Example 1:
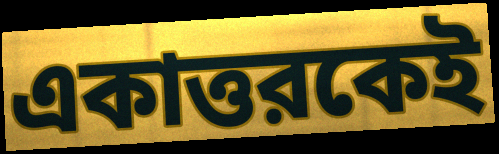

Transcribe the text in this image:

একাত্তরকেই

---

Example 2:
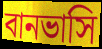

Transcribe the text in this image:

বানভাসি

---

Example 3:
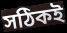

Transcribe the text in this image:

সঠিকই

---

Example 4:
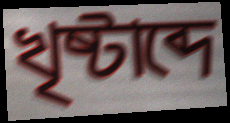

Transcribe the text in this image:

খৃষ্টাব্দে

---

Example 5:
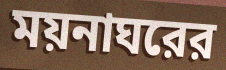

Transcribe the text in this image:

ময়নাঘরের